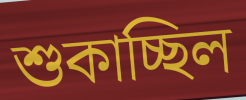
শুকাচ্ছিল